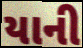
યાની